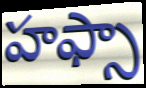
హఫ్సా